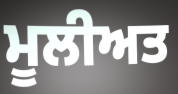
ਮੂਲੀਅਤ